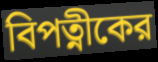
বিপত্নীকের